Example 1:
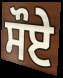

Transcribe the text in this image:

ਸੌਏ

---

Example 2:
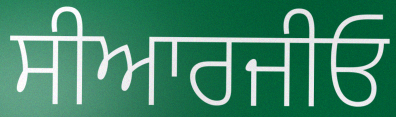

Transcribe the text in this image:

ਸੀਆਰਜੀਓ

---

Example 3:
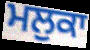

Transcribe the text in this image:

ਮਲੁਕਾ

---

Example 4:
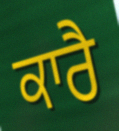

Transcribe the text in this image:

ਕਾਰੈ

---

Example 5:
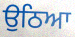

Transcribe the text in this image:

ਉਠਿਆ